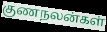
குணநலன்கள்